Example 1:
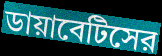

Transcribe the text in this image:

ডায়াবেটিসের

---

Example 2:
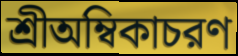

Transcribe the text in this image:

শ্রীঅম্বিকাচরণ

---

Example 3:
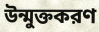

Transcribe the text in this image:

উন্মুক্তকরণ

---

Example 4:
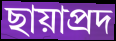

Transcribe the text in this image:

ছায়াপ্রদ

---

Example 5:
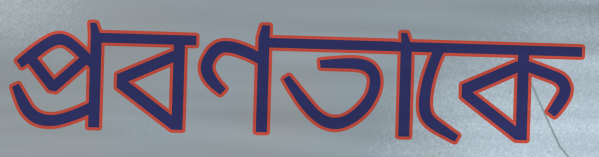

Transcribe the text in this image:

প্রবণতাকে